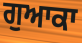
ਗੁਆਕਾ